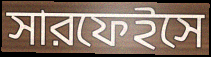
সারফেইসে